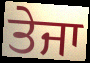
ਤੇਜਾ